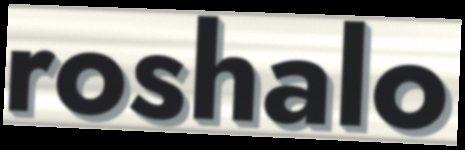
roshalo